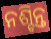
ନଶ୍ଚିନ୍ତ